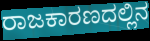
ರಾಜಕಾರಣದಲ್ಲಿನ